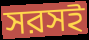
সরসই